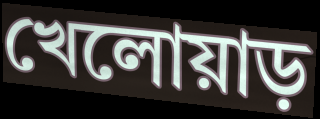
খেলোয়াড়